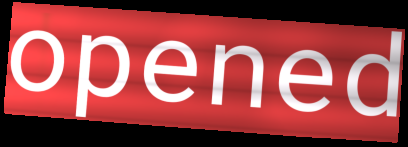
opened